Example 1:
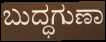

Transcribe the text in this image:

ಬುದ್ಧಗುಣಾ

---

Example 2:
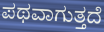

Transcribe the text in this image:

ಪಥವಾಗುತ್ತದೆ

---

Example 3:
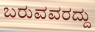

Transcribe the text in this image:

ಬರುವವರದ್ದು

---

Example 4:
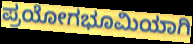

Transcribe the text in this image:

ಪ್ರಯೋಗಭೂಮಿಯಾಗಿ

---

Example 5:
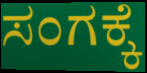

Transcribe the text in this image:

ಸಂಗಕ್ಕೆ